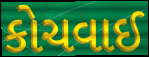
કોચવાઈ